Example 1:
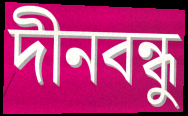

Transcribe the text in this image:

দীনবন্ধু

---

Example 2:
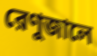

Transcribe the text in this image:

রেণুজালে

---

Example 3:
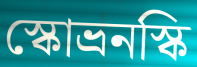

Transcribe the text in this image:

স্কোভ্রনস্কি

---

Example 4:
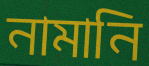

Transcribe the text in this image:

নামানি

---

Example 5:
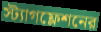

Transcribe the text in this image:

স্ট্যাগফ্লেশনের